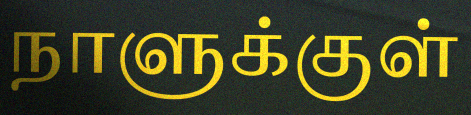
நாளுக்குள்